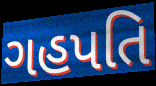
ગહપતિ